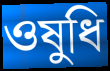
ওষুধি